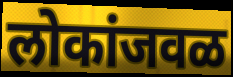
लोकांजवळ